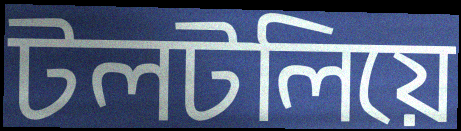
টলটলিয়ে